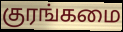
குரங்கமை